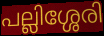
പല്ലിശ്ശേരി